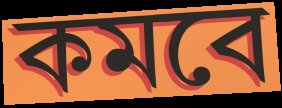
কমবে